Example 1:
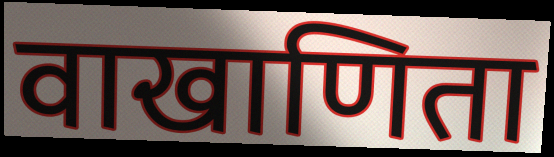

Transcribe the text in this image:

वाखाणिता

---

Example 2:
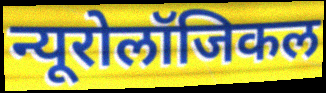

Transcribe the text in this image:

न्यूरोलॉजिकल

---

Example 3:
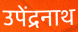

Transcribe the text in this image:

उपेंद्रनाथ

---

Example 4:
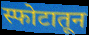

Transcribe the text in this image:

स्फोटातून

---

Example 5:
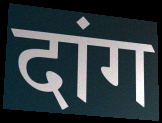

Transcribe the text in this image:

दांग